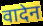
वादेन